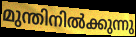
മുന്തിനിൽക്കുന്നു